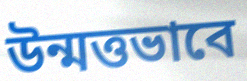
উন্মত্তভাবে